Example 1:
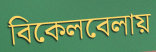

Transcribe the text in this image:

বিকেলবেলায়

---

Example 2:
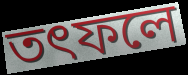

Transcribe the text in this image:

তৎফলে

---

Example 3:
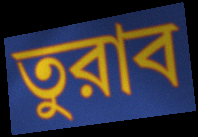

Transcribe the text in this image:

তুরাব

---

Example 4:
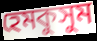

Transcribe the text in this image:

হেমকুসুম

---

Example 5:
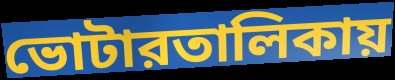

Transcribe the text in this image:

ভোটারতালিকায়